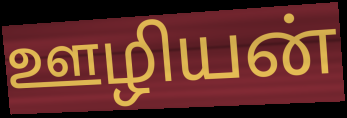
ஊழியன்